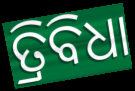
ତ୍ରିବିଧା